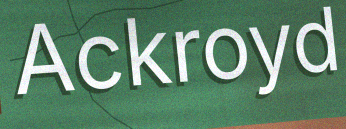
Ackroyd